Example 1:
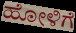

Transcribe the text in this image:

ಹೋಳಿಗೆ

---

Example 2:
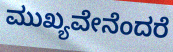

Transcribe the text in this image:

ಮುಖ್ಯವೇನೆಂದರೆ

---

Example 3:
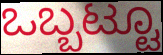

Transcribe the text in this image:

ಒಬ್ಬಟ್ಟೂ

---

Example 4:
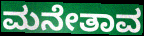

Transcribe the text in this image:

ಮನೇತಾವ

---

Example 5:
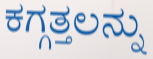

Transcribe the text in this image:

ಕಗ್ಗತ್ತಲನ್ನು